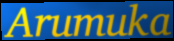
Arumuka